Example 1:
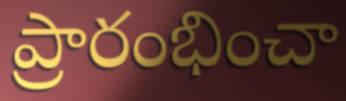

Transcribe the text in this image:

ప్రారంభించా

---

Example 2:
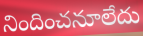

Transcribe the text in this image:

నిందించనూలేదు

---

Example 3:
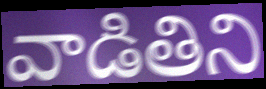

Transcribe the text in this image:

వాడితిని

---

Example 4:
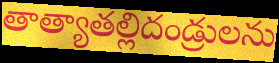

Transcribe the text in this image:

తాత్యాతల్లిదండ్రులను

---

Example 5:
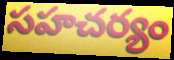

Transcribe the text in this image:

సహచర్యం